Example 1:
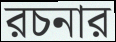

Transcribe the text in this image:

রচনার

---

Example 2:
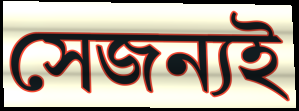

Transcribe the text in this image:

সেজন্যই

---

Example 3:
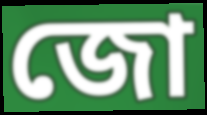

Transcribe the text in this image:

জো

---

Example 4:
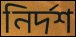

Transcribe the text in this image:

নির্দশ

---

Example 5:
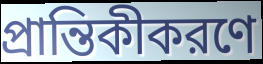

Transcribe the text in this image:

প্রান্তিকীকরণে